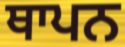
ਥਾਪਨ